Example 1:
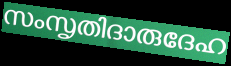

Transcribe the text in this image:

സംസൃതിദാരുദേഹ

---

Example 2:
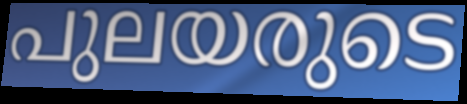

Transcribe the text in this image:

പുലയരുടെ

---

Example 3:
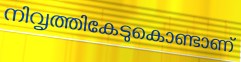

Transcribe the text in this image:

നിവൃത്തികേടുകൊണ്ടാണ്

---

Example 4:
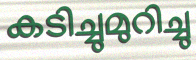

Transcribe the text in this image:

കടിച്ചുമുറിച്ചു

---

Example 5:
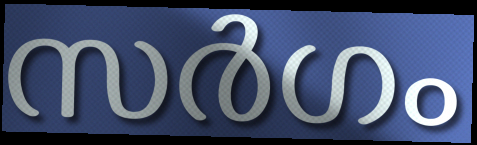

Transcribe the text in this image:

സർഗം